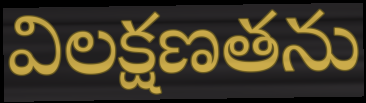
విలక్షణతను